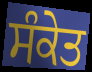
ਸੰਕੇਤ